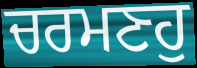
ਚਰਮਣਹੁ